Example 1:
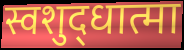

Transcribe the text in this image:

स्वशुद्धात्मा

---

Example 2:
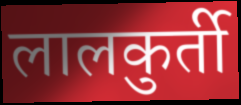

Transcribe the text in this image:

लालकुर्ती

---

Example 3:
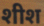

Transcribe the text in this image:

शीश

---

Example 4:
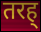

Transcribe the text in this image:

तरह्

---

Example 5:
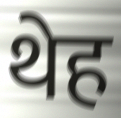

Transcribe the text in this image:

थेह